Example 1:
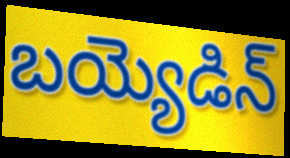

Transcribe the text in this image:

బయ్యెడిన్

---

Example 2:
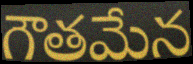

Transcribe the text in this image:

గౌతమేన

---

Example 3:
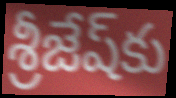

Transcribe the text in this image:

శ్రీజేష్‌కు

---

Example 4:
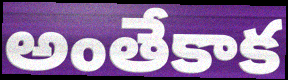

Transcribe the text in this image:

అంతేకాక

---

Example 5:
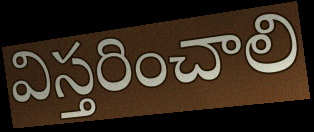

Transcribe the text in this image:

విస్తరించాలి